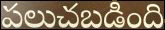
పలుచబడింది